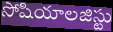
సోషియాలజిస్టు